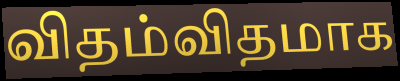
விதம்விதமாக